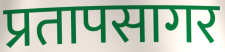
प्रतापसागर